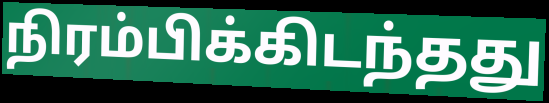
நிரம்பிக்கிடந்தது